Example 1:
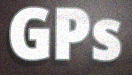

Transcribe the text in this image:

GPs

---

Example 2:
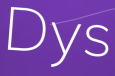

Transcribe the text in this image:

Dys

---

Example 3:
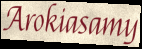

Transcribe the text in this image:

Arokiasamy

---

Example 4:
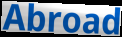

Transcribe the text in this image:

Abroad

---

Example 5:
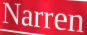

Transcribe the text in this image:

Narren